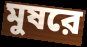
মুষরে